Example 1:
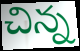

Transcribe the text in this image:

చిన్న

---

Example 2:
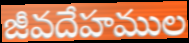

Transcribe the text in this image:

జీవదేహముల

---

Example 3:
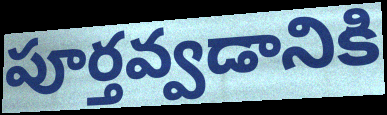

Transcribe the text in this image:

పూర్తవ్వడానికి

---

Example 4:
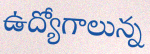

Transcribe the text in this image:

ఉద్యోగాలున్న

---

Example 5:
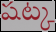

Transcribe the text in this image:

షట్క